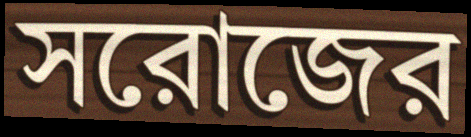
সরোজের